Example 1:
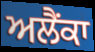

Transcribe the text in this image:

ਅਲੈਂਕਾ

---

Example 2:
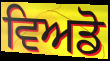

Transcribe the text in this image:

ਵਿਅਡੋ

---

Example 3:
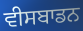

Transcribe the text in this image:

ਵੀਸਬਾਡਨ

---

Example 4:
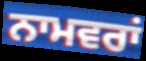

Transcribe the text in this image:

ਨਾਮਵਰਾਂ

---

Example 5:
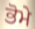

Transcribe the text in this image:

ਭੋਮੇ